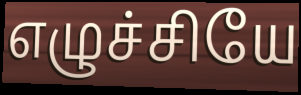
எழுச்சியே